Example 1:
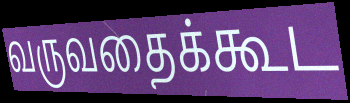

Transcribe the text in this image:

வருவதைக்கூட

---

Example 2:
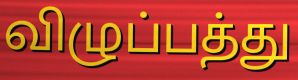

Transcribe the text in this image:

விழுப்பத்து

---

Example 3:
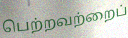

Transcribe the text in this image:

பெற்றவற்றைப்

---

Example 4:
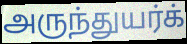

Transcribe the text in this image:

அருந்துயர்க்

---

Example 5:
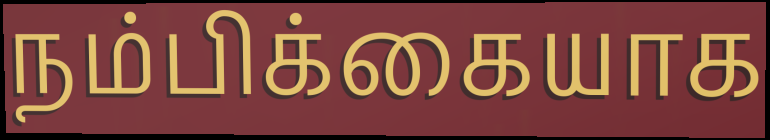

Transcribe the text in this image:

நம்பிக்கையாக